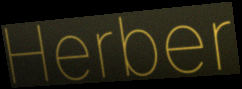
Herber